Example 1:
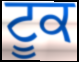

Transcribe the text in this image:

ਟੂਕ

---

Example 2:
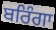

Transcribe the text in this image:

ਬਰਿੰਗਾ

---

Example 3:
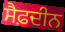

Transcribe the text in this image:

ਸੈਫ਼ਦੀਨ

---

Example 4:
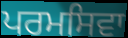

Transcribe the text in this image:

ਪਰਮਸਿਵਾ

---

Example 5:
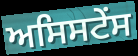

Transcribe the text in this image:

ਅਸਿਸਟੇਂਸ